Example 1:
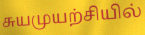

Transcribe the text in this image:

சுயமுயற்சியில்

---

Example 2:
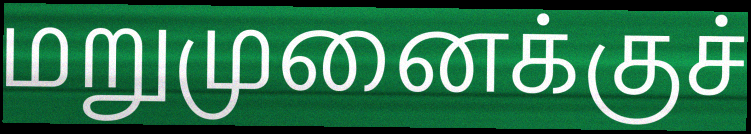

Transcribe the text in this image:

மறுமுனைக்குச்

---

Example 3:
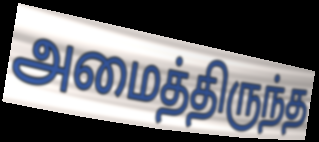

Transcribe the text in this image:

அமைத்திருந்த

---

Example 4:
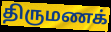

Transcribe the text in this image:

திருமணக்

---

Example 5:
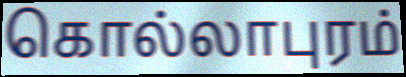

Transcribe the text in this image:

கொல்லாபுரம்